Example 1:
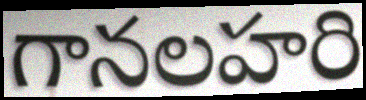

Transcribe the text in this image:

గానలహరి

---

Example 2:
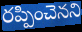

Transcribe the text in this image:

రప్పించెనని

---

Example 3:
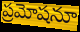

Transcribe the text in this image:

ప్రమోషనూ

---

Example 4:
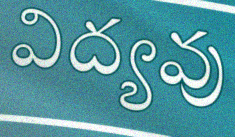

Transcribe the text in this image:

విద్యవు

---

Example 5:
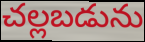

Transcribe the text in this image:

చల్లబడును